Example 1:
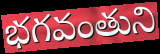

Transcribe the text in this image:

భగవంతుని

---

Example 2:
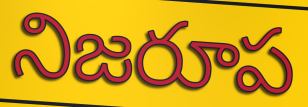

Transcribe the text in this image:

నిజరూప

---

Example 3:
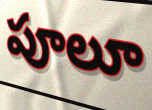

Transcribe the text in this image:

పూలూ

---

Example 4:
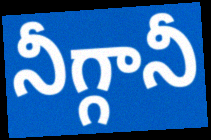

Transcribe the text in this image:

నీగ్గానీ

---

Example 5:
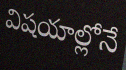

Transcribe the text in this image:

విషయాల్లోనే